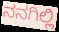
ನನಗಿಲ್ಲಿ